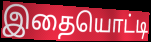
இதையொட்டி